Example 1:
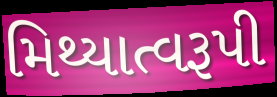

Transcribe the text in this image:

મિથ્યાત્વરૂપી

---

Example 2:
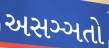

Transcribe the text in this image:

અસઞ્ઞતો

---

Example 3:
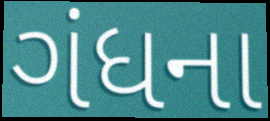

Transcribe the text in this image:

ગંધના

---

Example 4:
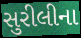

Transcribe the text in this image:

સુરીલીના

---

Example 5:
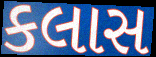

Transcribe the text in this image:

કલાસ